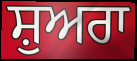
ਸ਼ੁਅਰਾ